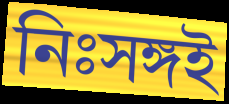
নিঃসঙ্গই